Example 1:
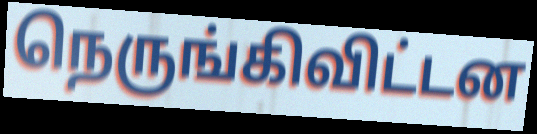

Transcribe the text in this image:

நெருங்கிவிட்டன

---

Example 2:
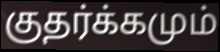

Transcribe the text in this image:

குதர்க்கமும்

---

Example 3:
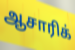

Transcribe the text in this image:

ஆசாரிக்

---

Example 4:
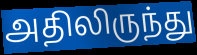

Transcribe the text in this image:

அதிலிருந்து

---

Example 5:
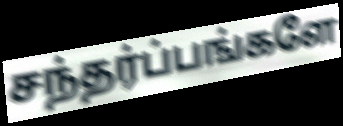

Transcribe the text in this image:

சந்தர்ப்பங்களே